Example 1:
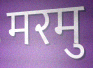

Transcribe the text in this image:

मरमु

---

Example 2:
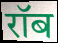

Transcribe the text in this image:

रॉब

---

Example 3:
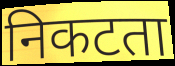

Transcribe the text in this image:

निकटता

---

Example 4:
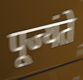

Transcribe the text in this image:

पूज्यंते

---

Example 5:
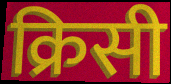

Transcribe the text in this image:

क्रिसी